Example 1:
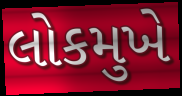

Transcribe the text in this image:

લોકમુખે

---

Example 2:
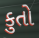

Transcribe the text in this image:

કુતો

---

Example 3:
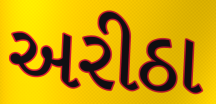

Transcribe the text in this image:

અરીઠા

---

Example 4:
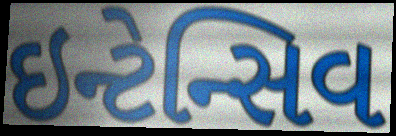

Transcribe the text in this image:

ઇન્ટેન્સિવ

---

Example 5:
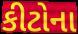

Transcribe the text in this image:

કીટોના